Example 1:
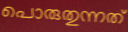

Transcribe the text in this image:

പൊരുതുന്നത്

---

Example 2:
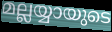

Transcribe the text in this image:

മല്ലയ്യായുടെ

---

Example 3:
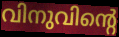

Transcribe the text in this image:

വിനുവിന്റെ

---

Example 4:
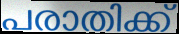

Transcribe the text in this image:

പരാതിക്ക്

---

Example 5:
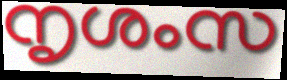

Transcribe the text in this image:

നൃശംസ